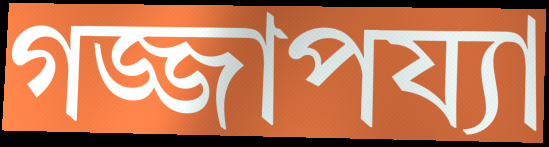
গজ্জাপয্যা